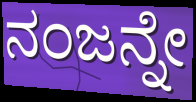
ನಂಜನ್ನೇ